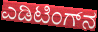
ಎಡಿಟಿಂಗ್‌ನ